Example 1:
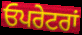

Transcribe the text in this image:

ਓਪਰੇਟਰਾਂ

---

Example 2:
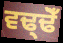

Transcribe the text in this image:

ਵਢ੍ਢੋਁ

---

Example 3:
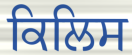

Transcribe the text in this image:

ਕਿਲਿਸ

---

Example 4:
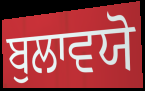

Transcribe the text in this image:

ਬੁਲਾਵਯੋ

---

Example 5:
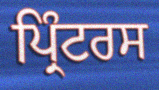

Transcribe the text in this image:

ਪ੍ਰਿੰਟਰਸ